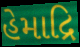
હેમાદ્રિ